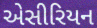
એસીરિયન